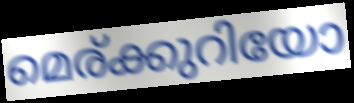
മെര്ക്കുറിയോ